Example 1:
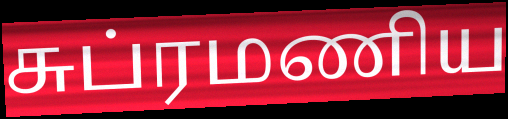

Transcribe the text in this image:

சுப்ரமணிய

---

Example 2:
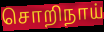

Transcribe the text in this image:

சொறிநாய்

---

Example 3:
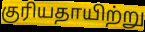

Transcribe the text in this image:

குரியதாயிற்று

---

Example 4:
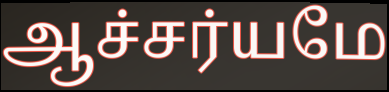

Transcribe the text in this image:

ஆச்சர்யமே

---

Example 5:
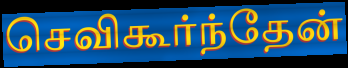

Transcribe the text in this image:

செவிகூர்ந்தேன்